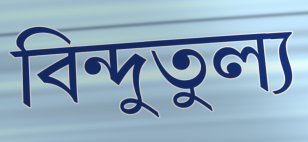
বিন্দুতুল্য